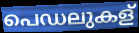
പെഡലുകള്